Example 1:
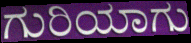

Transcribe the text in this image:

ಗುರಿಯಾಗು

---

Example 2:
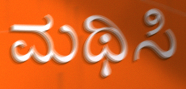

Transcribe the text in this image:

ಮಥಿಸಿ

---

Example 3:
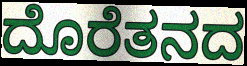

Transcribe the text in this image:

ದೊರೆತನದ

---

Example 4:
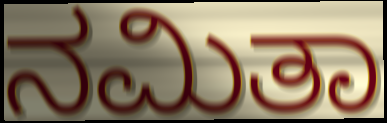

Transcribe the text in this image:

ನಮಿತಾ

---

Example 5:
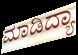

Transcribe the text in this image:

ಮಾಡಿದ್ಯಾ